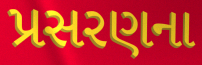
પ્રસરણના